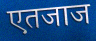
एतजाज